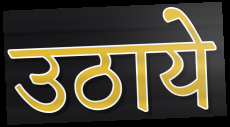
उठाये